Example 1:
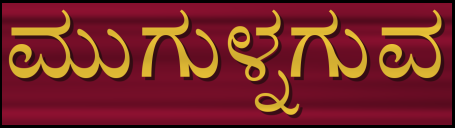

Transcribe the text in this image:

ಮುಗುಳ್ನಗುವ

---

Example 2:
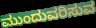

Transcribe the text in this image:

ಮುಂದುವರಿಸುವ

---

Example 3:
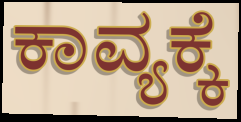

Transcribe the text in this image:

ಕಾವ್ಯಕ್ಕೆ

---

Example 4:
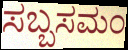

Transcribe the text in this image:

ಸಬ್ಬಸಮಂ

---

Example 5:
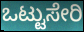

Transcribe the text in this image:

ಒಟ್ಟುಸೇರಿ